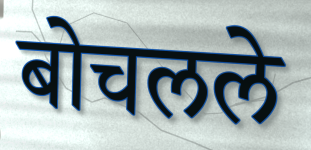
बोचलले